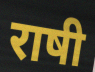
राषी